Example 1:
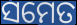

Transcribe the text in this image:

ସମେତ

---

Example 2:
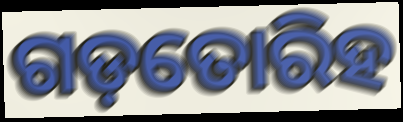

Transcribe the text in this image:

ଗଡ଼ତୋରିହ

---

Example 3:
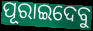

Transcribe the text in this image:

ପୂରାଇଦେବୁ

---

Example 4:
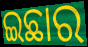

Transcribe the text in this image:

ଇଛାର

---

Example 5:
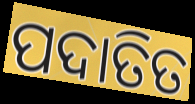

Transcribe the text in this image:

ପଦାତିତ